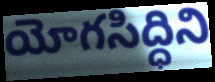
యోగసిద్ధిని